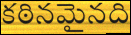
కఠినమైనది